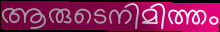
ആരുടെനിമിത്തം